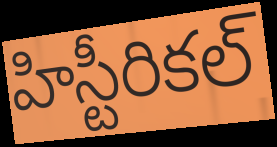
హిస్టీరికల్